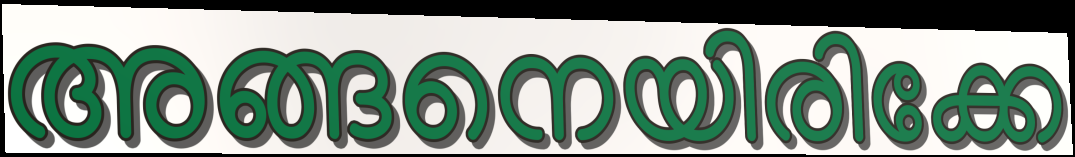
അങ്ങനെയിരിക്കേ